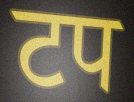
टप